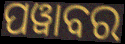
ପୱାବର